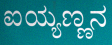
ಐಯ್ಯಣ್ಣನ